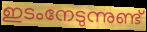
ഇടംനേടുന്നുണ്ട്